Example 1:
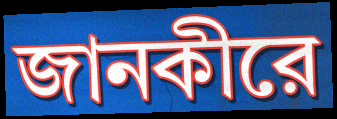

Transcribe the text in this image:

জানকীরে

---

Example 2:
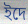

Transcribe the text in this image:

ইদে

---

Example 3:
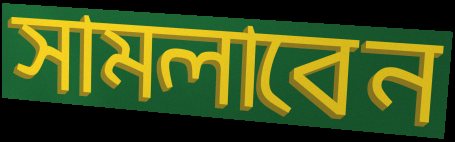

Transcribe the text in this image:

সামলাবেন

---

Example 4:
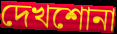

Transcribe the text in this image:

দেখশোনা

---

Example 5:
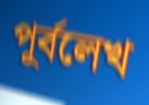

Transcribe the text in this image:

পূর্বলেখ